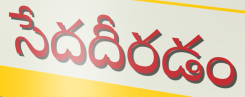
సేదదీరడం